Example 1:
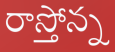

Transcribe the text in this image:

రాస్తోన్న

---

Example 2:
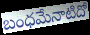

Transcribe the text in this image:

బంధమేనాటిదో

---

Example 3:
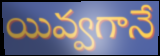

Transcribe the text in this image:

యివ్వగానే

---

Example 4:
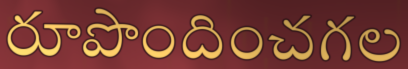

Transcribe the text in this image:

రూపొందించగల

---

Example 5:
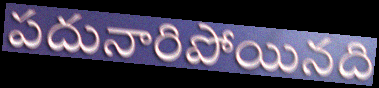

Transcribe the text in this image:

పదునారిపోయినది